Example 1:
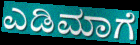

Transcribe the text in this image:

ಎಡಿಮಾಗೆ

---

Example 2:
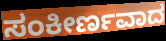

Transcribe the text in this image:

ಸಂಕೀರ್ಣವಾದ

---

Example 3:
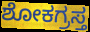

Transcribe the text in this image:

ಶೋಕಗ್ರಸ್ತ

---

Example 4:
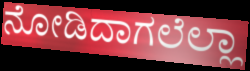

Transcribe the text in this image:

ನೋಡಿದಾಗಲೆಲ್ಲಾ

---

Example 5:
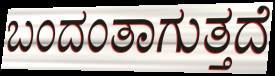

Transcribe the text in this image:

ಬಂದಂತಾಗುತ್ತದೆ